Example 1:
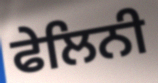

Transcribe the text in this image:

ਫੇਲਿਨੀ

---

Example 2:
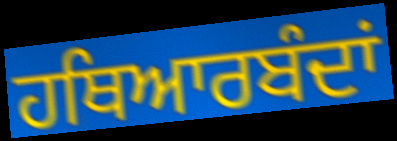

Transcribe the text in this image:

ਹਥਿਆਰਬੰਦਾਂ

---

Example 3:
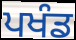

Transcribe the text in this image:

ਪਖੰਡ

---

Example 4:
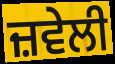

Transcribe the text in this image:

ਜ਼ਵੇਲੀ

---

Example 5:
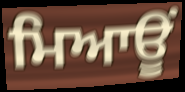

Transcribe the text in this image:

ਮਿਆਊਂ